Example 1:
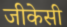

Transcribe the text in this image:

जीकेसी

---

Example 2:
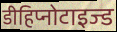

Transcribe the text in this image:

डीहिप्नोटाइज्ड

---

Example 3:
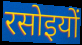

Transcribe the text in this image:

रसोइयों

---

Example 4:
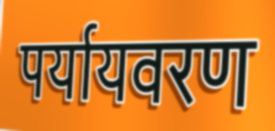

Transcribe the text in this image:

पर्यायवरण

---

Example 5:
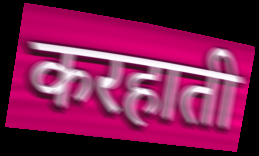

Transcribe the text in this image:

करहाती